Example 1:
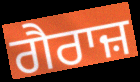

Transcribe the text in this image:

ਗੈਰਾਜ਼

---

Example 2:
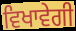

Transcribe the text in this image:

ਵਿਖਾਵੇਗੀ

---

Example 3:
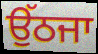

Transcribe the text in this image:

ਉੱਠਜਾ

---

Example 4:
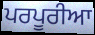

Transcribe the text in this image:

ਪਰਪੂਰੀਆ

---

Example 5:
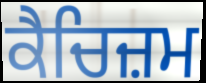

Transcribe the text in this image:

ਕੈਚਿਜ਼ਮ